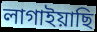
লাগাইয়াছি